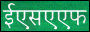
ईएसएएफ